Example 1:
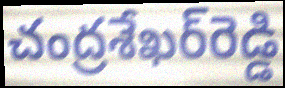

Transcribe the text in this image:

చంద్రశేఖర్‌రెడ్డి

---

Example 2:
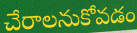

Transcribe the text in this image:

చేరాలనుకోవడం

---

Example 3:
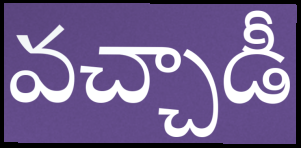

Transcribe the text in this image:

వచ్చాడీ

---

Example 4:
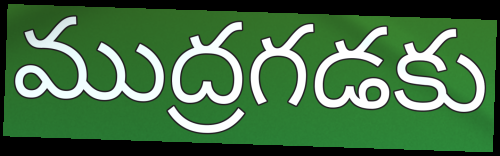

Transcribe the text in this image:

ముద్రగడకు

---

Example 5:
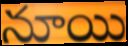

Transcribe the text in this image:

నూయి